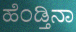
ಹೆಂಡ್ತಿನಾ